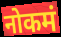
नोकमं